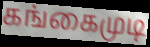
கங்கைமுடி